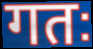
गतः